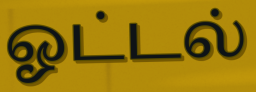
ஓட்டல்